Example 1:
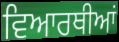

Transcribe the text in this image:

ਵਿਆਰਥੀਆਂ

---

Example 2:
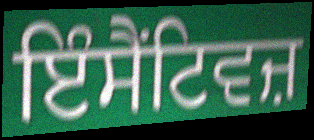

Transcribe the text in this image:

ਇੰਸੈਂਟਿਵਜ਼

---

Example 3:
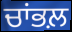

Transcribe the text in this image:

ਚਾਂਭਲ਼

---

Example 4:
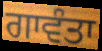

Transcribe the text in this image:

ਗਾਵੰਤਾ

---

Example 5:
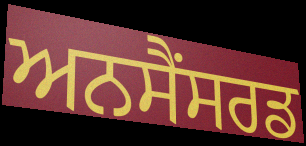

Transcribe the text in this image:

ਅਨਸੈਂਸਰਡ